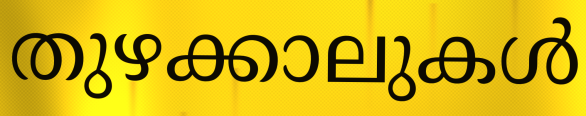
തുഴക്കാലുകൾ